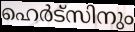
ഹെർട്സിനും